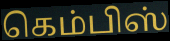
கெம்பிஸ்